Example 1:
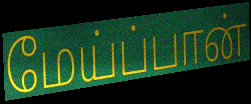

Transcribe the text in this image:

மேய்ப்பான்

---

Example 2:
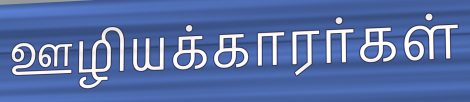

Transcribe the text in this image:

ஊழியக்காரர்கள்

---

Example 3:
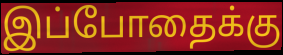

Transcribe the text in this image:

இப்போதைக்கு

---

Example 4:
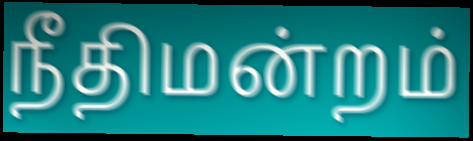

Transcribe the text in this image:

நீதிமன்றம்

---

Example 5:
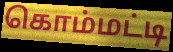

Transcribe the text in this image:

கொம்மட்டி